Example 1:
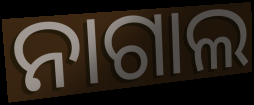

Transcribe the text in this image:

ନାଗାଲ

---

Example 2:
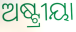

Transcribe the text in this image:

ଅଷ୍ଟ୍ରୀୟା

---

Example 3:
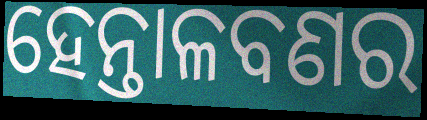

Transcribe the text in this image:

ହେନ୍ତାଳବଣର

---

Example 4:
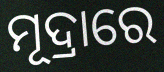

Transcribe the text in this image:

ମୂଦ୍ରାରେ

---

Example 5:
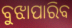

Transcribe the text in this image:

ବୁଝାପାରିବ